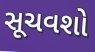
સૂચવશો